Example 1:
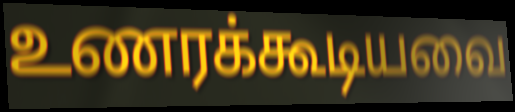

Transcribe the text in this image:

உணரக்கூடியவை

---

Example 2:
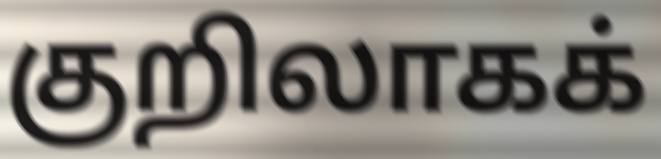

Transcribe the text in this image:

குறிலாகக்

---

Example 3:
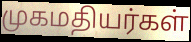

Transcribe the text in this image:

முகமதியர்கள்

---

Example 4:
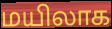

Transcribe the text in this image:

மயிலாக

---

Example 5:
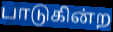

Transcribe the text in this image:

பாடுகின்ற